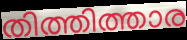
തിത്തിത്താര